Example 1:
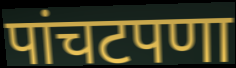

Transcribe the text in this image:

पांचटपणा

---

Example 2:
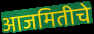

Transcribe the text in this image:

आजमितीचे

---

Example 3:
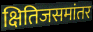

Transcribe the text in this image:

क्षितिजसमांतर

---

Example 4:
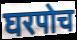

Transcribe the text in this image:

घरपोच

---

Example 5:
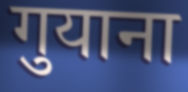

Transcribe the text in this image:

गुयाना